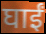
घाईं